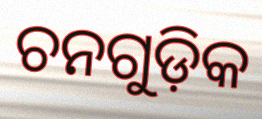
ଚନଗୁଡ଼ିକ